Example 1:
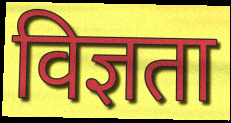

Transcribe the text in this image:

विज्ञता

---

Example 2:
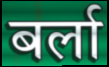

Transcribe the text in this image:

बर्ला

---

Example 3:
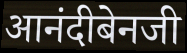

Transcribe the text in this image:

आनंदीबेनजी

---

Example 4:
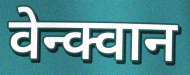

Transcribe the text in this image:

वेन्क्वान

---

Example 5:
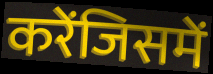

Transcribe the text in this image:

करेंजिसमें